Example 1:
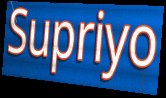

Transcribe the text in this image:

Supriyo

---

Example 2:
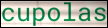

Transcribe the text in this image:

cupolas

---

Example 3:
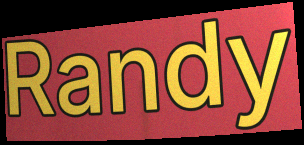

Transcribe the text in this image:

Randy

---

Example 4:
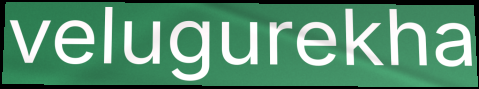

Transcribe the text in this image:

velugurekha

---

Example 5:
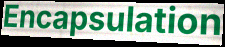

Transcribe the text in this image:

Encapsulation